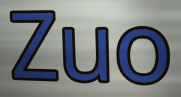
Zuo